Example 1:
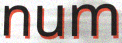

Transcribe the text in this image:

num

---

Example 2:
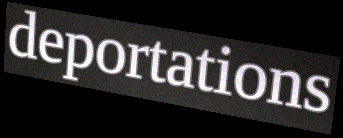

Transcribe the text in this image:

deportations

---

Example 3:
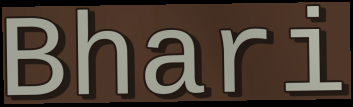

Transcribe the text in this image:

Bhari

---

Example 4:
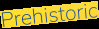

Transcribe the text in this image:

Prehistoric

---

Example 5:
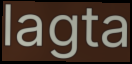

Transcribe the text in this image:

lagta